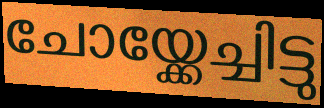
ചോയ്ക്കേച്ചിട്ടു